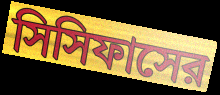
সিসিফাসের